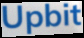
Upbit